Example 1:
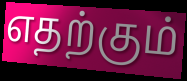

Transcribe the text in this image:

எதற்கும்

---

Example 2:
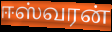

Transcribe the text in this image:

ஈஸ்வரன்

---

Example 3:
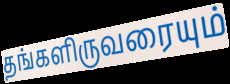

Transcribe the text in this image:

தங்களிருவரையும்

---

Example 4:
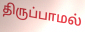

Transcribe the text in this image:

திருப்பாமல்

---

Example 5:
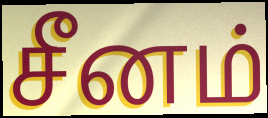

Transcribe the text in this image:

சீனம்